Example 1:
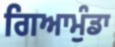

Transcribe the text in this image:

ਗਿਆਮੁੰਡਾ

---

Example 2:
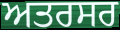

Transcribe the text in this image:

ਅਤਰਸਰ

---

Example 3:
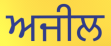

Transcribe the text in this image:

ਅਜੀਲ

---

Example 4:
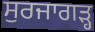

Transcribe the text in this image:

ਸੁਰਜਾਗੜ੍ਹ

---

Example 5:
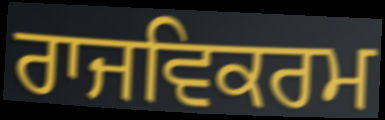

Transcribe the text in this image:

ਰਾਜਵਿਕਰਮ